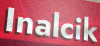
Inalcik